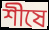
শীষে